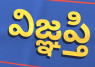
విజ్ఞప్తి